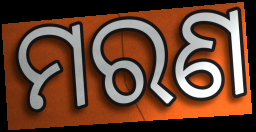
ମରଣ